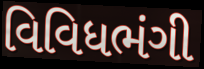
વિવિધભંગી